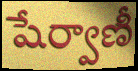
షేర్వాణీ